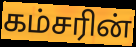
கம்சரின்